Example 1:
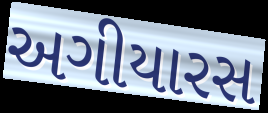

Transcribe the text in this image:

અગીયારસ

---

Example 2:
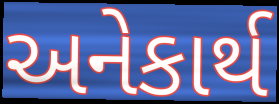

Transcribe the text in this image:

અનેકાર્થ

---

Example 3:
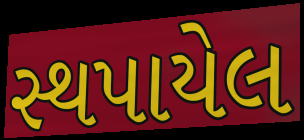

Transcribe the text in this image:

સ્થપાયેલ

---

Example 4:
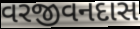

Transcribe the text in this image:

વરજીવનદાસ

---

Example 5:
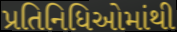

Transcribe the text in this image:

પ્રતિનિધિઓમાંથી